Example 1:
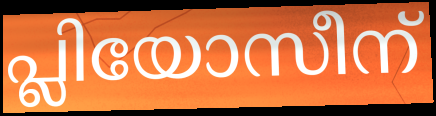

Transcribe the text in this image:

പ്ലിയോസീന്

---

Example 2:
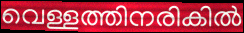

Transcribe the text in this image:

വെള്ളത്തിനരികിൽ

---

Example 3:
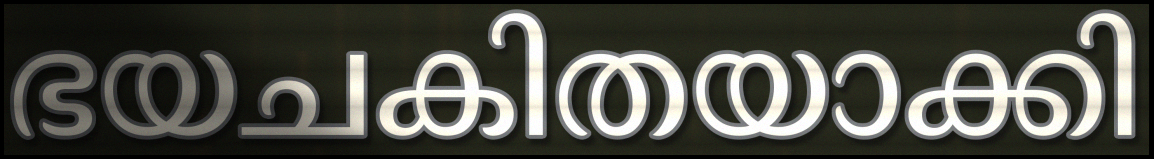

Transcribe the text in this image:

ഭയചകിതയാക്കി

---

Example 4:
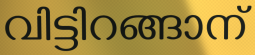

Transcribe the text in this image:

വിട്ടിറങ്ങാന്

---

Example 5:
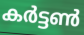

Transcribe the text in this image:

കർട്ടൺ